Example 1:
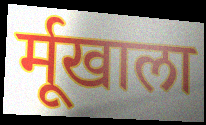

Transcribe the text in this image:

र्मूखाला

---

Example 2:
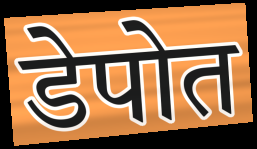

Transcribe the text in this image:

डेपोत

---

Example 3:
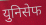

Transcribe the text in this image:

युनिसेफ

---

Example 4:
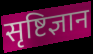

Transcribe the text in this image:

सृष्टिज्ञान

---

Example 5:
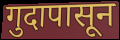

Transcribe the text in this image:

गुदापासून